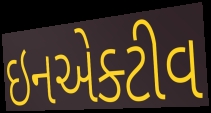
ઇનએક્ટીવ